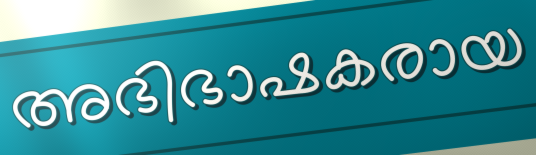
അഭിഭാഷകരായ